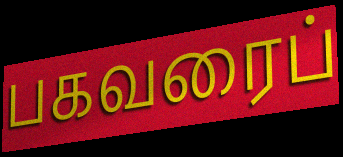
பகவரைப்